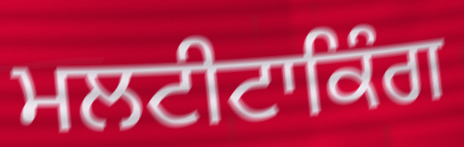
ਮਲਟੀਟਾਕਿੰਗ